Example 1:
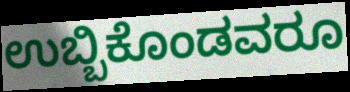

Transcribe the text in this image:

ಉಬ್ಬಿಕೊಂಡವರೂ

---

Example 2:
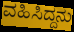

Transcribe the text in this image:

ವಹಿಸಿದ್ದನು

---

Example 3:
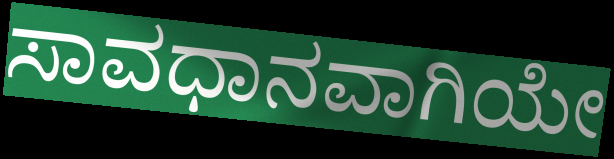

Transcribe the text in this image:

ಸಾವಧಾನವಾಗಿಯೇ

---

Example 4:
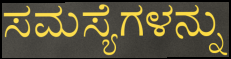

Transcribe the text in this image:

ಸಮಸ್ಯೆಗಳನ್ನು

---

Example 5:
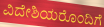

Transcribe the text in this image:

ವಿದೇಶಿಯರೊಂದಿಗೆ